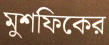
মুশফিকের